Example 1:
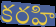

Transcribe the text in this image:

కరహి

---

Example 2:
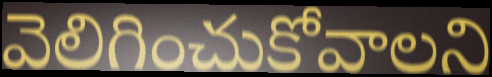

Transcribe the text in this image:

వెలిగించుకోవాలని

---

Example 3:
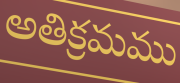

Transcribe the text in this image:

అతిక్రమము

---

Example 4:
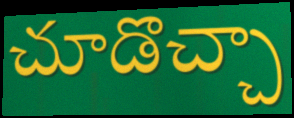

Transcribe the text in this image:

చూడొచ్చా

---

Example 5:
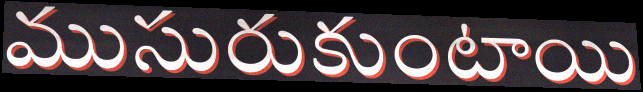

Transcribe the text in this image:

ముసురుకుంటాయి